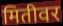
मितीवर